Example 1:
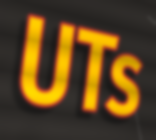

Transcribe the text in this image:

UTs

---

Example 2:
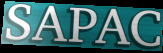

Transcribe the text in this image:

SAPAC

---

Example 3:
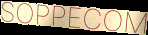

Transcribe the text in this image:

SOPPECOM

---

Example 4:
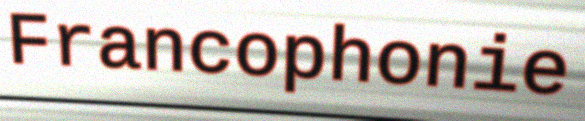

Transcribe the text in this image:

Francophonie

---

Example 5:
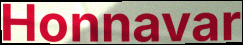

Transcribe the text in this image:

Honnavar